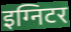
इग्निटर